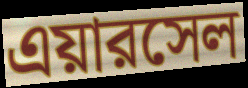
এয়ারসেল